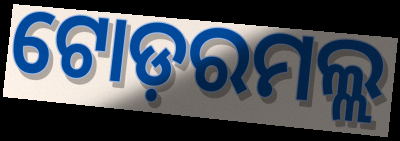
ଟୋଡ଼ରମଲ୍ଲ